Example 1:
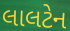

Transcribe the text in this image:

લાલટેન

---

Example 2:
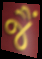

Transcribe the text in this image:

જૈં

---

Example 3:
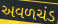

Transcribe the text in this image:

અવળચંડ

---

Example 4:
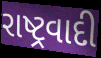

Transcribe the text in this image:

રાષ્ટ્રવાદી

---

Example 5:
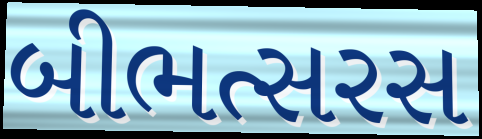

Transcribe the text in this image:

બીભત્સરસ